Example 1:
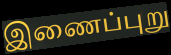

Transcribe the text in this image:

இணைப்புறு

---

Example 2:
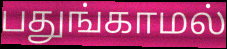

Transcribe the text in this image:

பதுங்காமல்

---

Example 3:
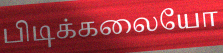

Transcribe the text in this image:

பிடிக்கலையோ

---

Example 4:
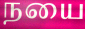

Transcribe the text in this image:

நயை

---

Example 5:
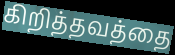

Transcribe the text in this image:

கிறித்தவத்தை